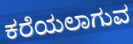
ಕರೆಯಲಾಗುವ